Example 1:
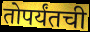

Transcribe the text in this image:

तोपर्यंतची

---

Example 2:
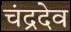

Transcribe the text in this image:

चंद्रदेव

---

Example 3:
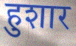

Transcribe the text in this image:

हुशार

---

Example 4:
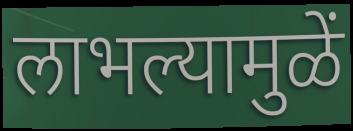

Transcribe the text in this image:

लाभल्यामुळें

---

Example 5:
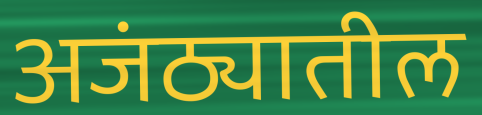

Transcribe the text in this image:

अजंठ्यातील